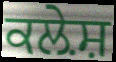
ਕਲ਼ੇਸ਼